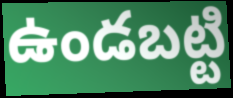
ఉండబట్టి